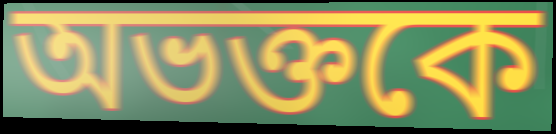
অভক্তকে